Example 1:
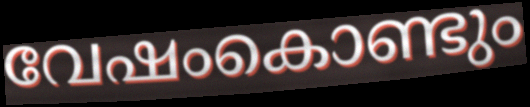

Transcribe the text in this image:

വേഷംകൊണ്ടും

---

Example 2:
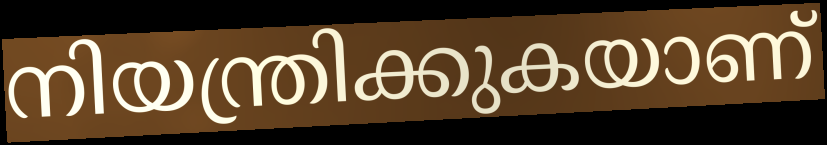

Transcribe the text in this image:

നിയന്ത്രിക്കുകയാണ്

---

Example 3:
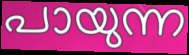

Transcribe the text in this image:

പായുന്ന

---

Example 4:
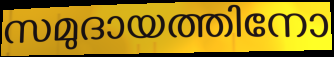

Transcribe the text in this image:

സമുദായത്തിനോ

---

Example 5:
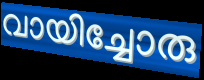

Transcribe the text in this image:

വായിച്ചോരു